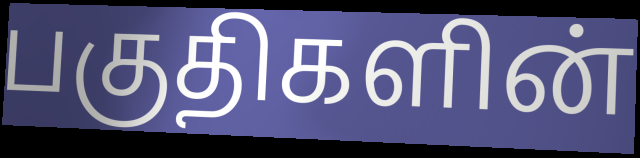
பகுதிகளின்